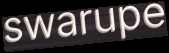
swarupe